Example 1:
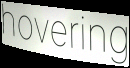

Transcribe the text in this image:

hovering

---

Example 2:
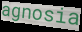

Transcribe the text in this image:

agnosia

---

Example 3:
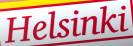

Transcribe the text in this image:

Helsinki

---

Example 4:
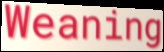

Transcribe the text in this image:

Weaning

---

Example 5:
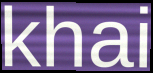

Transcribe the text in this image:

khai